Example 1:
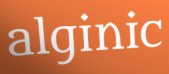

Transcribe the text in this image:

alginic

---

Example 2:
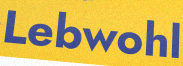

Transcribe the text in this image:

Lebwohl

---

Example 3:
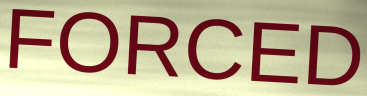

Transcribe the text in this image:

FORCED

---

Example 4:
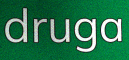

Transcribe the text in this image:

druga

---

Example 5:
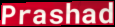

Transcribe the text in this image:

Prashad